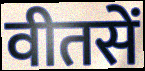
वीतसें